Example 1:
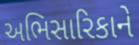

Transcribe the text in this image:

અભિસારિકાને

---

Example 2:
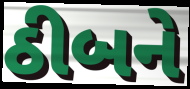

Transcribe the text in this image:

ઠીબને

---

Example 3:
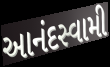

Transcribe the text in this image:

આનંદસ્વામી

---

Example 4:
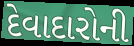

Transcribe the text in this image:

દેવાદારોની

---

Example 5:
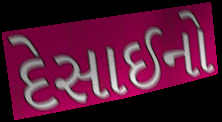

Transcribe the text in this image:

દેસાઈનો